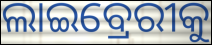
ଲାଇବ୍ରେରୀକୁ